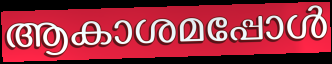
ആകാശമപ്പോൾ